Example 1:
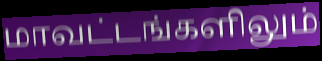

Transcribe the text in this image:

மாவட்டங்களிலும்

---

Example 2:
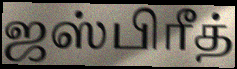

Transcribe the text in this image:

ஜஸ்பிரீத்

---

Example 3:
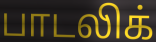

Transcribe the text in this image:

பாடலிக்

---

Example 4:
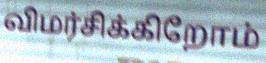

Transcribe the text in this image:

விமர்சிக்கிறோம்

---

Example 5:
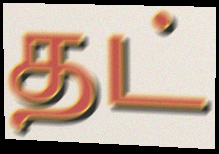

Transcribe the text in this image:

தட்